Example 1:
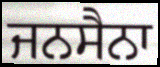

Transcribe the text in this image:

ਜਨਸੈਨਾ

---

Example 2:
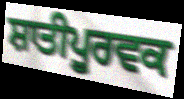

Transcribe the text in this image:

ਸ਼ਾਤੀਪੂਰਵਕ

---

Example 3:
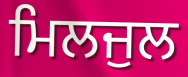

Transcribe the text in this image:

ਮਿਲਜੁਲ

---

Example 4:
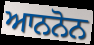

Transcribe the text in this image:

ਆਨਨੋਨ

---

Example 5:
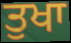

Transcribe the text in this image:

ਤੁਖਾ